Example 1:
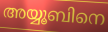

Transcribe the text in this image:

അയ്യൂബിനെ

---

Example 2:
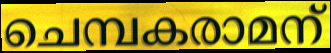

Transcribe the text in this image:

ചെമ്പകരാമന്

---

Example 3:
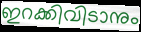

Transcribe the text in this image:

ഇറക്കിവിടാനും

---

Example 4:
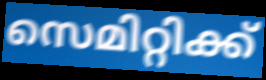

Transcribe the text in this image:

സെമിറ്റിക്ക്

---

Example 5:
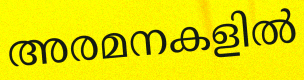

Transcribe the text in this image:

അരമനകളിൽ